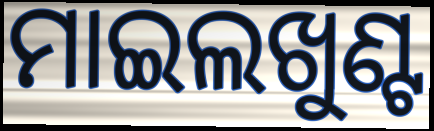
ମାଇଲଖୁଣ୍ଟ